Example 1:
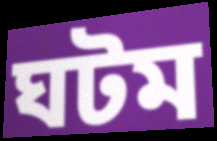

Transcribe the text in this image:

ঘটম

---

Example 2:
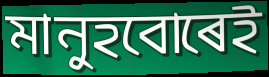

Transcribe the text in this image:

মানুহবোৰেই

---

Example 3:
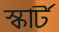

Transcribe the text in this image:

স্কাৰ্ট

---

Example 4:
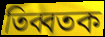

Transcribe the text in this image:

তিব্বতক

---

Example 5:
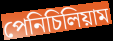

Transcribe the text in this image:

পেনিচিলিয়াম